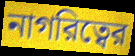
নাগরিত্বের